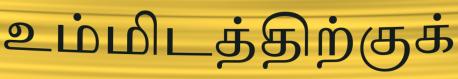
உம்மிடத்திற்குக்